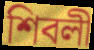
শিবলী